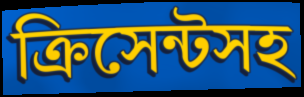
ক্রিসেন্টসহ